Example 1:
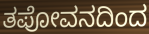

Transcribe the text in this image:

ತಪೋವನದಿಂದ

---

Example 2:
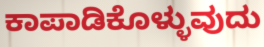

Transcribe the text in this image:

ಕಾಪಾಡಿಕೊಳ್ಳುವುದು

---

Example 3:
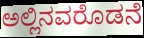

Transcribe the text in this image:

ಅಲ್ಲಿನವರೊಡನೆ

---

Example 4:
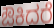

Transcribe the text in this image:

ಔಕಿದರೆ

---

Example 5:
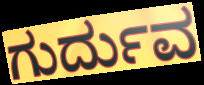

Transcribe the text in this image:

ಗುರ್ದುವ